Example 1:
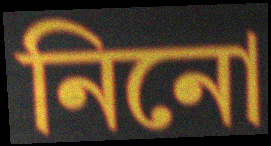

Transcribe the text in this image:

নিনো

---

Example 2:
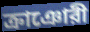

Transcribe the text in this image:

ক্রাঞোরী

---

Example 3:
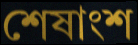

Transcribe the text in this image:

শেষাংশ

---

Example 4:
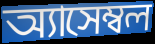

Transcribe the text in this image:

অ্যাসেম্বল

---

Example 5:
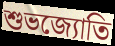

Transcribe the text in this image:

শুভজ্যোতি